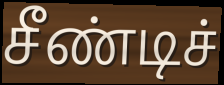
சீண்டிச்